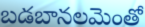
బడబానలమెంతో